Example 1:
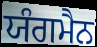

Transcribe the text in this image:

ਯੰਗਮੈਨ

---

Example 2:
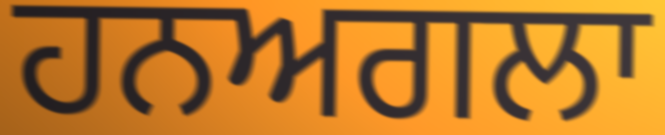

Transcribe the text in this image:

ਹਨਅਗਲਾ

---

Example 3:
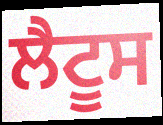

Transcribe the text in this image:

ਲੈਟੂਸ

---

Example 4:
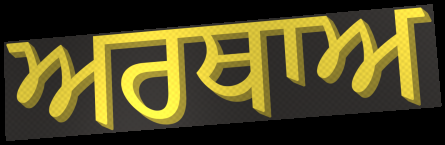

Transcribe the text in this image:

ਅਰਥਾਅ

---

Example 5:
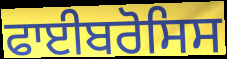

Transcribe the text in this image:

ਫਾਈਬਰੋਸਿਸ